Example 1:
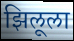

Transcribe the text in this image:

झिलूला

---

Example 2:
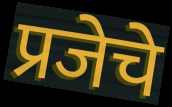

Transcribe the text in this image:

प्रजेचे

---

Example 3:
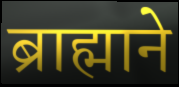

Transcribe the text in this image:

ब्राह्माने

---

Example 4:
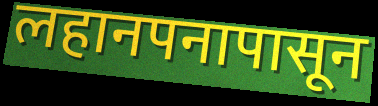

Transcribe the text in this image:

लहानपनापासून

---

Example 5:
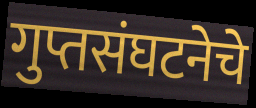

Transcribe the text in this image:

गुप्तसंघटनेचे